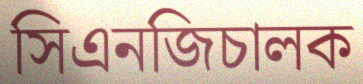
সিএনজিচালক